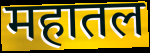
महातल